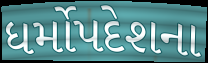
ધર્મોપદેશના